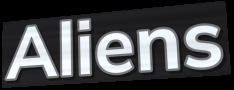
Aliens